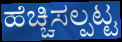
ಹೆಚ್ಚಿಸಲ್ಪಟ್ಟ